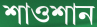
শাওশান